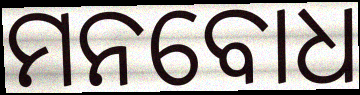
ମନବୋଧ